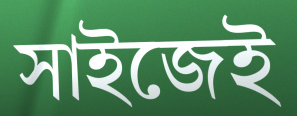
সাইজেই